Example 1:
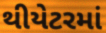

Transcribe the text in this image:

થીયેટરમાં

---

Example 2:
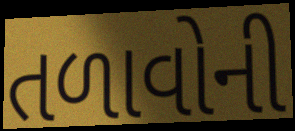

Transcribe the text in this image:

તળાવોની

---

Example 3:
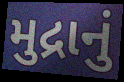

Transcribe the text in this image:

મુદ્રાનું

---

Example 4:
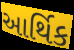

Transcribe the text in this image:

આર્થિક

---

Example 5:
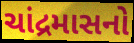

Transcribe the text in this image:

ચાંદ્રમાસનો